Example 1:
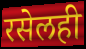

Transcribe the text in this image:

रसेलही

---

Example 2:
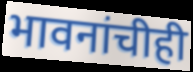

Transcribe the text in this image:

भावनांचीही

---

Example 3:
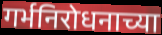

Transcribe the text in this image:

गर्भनिरोधनाच्या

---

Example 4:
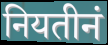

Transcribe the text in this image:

नियतीनं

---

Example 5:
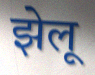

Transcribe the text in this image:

झेलू